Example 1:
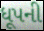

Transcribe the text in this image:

ધૂપની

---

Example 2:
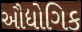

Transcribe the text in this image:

ઔદ્યોગિક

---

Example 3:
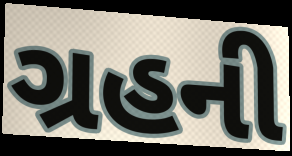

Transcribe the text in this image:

ગ્રહની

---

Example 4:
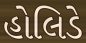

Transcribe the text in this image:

હોલિડે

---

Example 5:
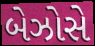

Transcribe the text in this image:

બેઝોસે